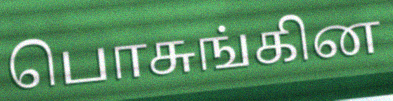
பொசுங்கின